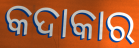
କଦାକାର